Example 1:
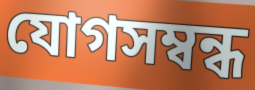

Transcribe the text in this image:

যোগসম্বন্ধ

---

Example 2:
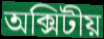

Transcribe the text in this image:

অক্সিটীয়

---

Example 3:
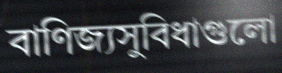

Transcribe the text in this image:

বাণিজ্যসুবিধাগুলো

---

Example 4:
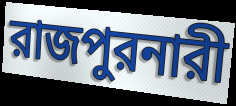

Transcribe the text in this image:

রাজপুরনারী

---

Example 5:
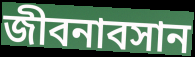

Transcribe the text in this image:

জীবনাবসান